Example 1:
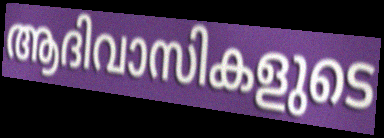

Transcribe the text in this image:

ആദിവാസികളുടെ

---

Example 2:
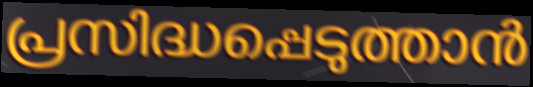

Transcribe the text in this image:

പ്രസിദ്ധപ്പെടുത്താൻ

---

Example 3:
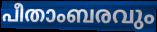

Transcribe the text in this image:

പീതാംബരവും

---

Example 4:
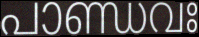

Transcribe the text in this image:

പാണ്ഡവഃ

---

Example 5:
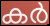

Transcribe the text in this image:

കർ